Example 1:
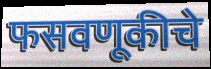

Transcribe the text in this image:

फसवणूकीचे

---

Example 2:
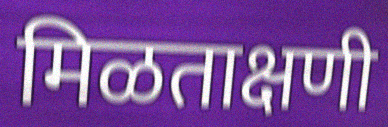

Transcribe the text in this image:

मिळताक्षणी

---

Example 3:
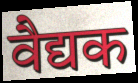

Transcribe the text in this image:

वैद्यक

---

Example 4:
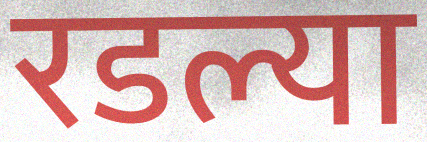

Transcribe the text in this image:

रडल्या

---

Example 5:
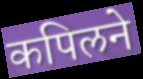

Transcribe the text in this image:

कपिलने